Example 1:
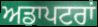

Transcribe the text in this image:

ਅਡਾਪਟਰਾਂ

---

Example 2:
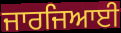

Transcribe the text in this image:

ਜਾਰਜਿਆਈ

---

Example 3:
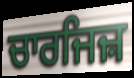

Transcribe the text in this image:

ਚਾਰਜਿਜ਼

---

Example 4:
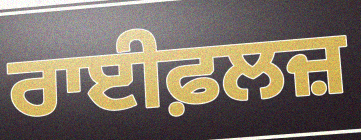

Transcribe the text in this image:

ਰਾਈਫ਼ਲਜ਼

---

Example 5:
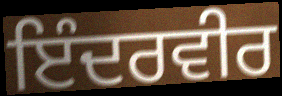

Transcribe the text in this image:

ਇੰਦਰਵੀਰ